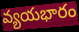
వ్యయభారం